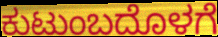
ಕುಟುಂಬದೊಳಗೆ